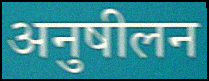
अनुषीलन